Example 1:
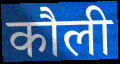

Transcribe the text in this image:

कौली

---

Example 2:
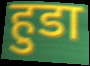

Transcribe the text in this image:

हुडा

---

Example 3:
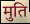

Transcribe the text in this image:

मुति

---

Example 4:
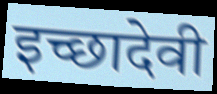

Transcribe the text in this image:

इच्छादेवी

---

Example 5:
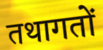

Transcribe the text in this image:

तथागतों